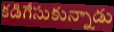
కడిగేసుకున్నాడు